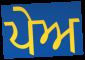
ਪੇਅ